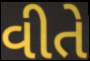
વીતે